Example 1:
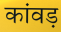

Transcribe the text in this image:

कांवड़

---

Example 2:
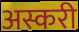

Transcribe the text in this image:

अस्करी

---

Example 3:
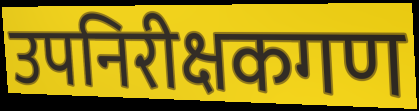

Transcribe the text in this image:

उपनिरीक्षकगण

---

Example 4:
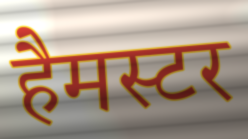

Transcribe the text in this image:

हैमस्टर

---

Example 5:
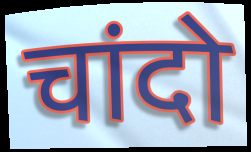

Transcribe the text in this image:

चांदो